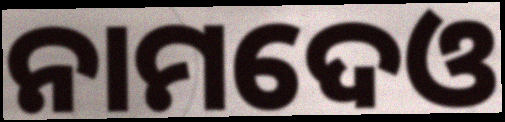
ନାମଦେଓ